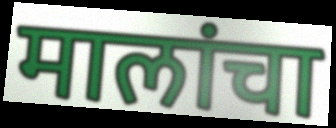
मालांचा